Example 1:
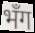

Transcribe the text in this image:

भँग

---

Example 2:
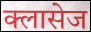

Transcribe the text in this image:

क्लासेज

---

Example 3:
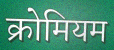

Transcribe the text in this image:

क्रोमियम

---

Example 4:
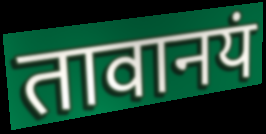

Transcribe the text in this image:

तावानयं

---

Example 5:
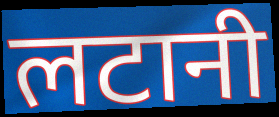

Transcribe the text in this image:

लटानी